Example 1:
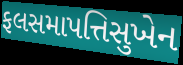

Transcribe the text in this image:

ફલસમાપત્તિસુખેન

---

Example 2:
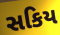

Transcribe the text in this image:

સકિય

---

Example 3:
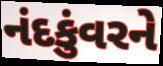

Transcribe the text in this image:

નંદકુંવરને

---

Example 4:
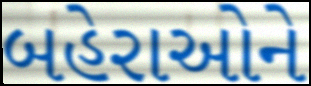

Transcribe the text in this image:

બહેરાઓને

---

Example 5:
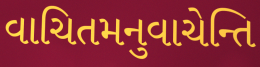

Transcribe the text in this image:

વાચિતમનુવાચેન્તિ